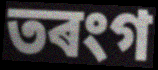
তৰংগ